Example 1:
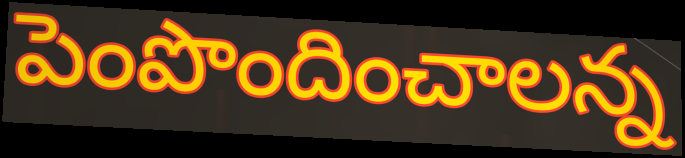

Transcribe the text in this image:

పెంపొందించాలన్న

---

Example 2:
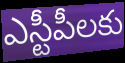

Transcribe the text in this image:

ఎస్టీపీలకు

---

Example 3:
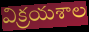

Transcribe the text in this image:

విక్రయశాల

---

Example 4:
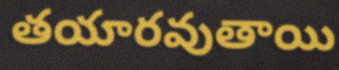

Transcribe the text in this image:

తయారవుతాయి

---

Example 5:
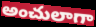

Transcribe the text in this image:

అంచులాగా